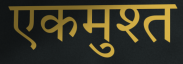
एकमुश्‍त